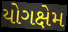
યોગક્ષેમ